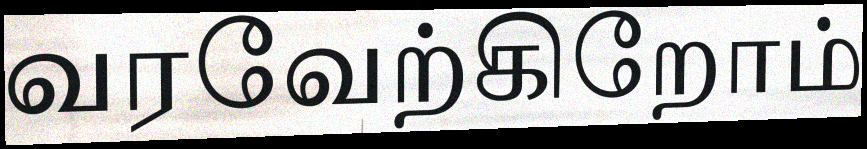
வரவேற்கிறோம்